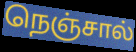
நெஞ்சால்